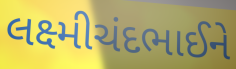
લક્ષ્મીચંદભાઈને